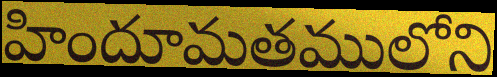
హిందూమతములోని